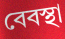
বেবস্থা